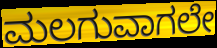
ಮಲಗುವಾಗಲೇ